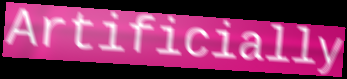
Artificially